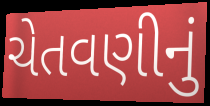
ચેતવણીનું